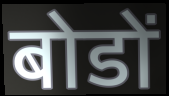
बोडों